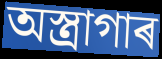
অস্ত্ৰাগাৰ